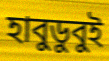
হাবুডুবুই